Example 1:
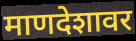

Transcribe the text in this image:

माणदेशावर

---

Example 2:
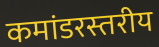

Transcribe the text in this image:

कमांडरस्तरीय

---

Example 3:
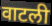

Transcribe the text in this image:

वाटली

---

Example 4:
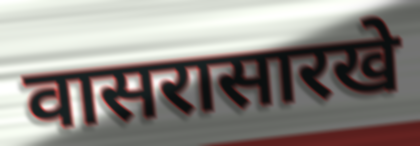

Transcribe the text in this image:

वासरासारखे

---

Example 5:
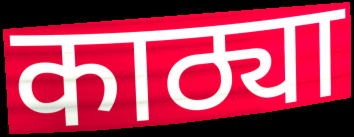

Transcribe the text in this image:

काठ्या